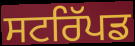
ਸਟਰਿੱਪਡ